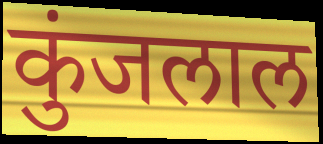
कुंजलाल